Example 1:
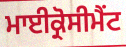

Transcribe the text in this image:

ਮਾਈਕ੍ਰੋਸੀਮੈਂਟ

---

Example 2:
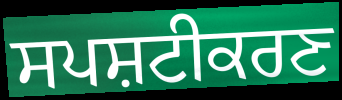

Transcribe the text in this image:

ਸਪਸ਼ਟੀਕਰਣ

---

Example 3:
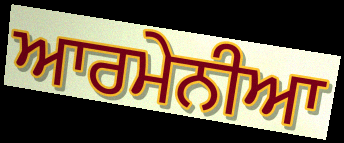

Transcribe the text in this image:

ਆਰਮੇਨੀਆ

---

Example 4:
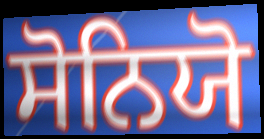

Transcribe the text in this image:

ਸੋਨਿਯੋ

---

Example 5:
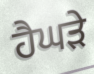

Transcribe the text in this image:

ਹੈਘੜੇ